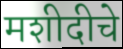
मशीदीचे